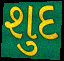
શુદ